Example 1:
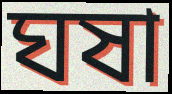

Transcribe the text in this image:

ঘষা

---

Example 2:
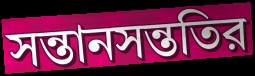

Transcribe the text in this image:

সন্তানসন্ততির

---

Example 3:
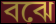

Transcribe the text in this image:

বঝে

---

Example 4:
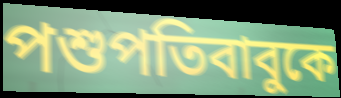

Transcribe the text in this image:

পশুপতিবাবুকে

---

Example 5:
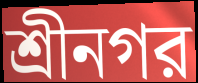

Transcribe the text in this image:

শ্রীনগর